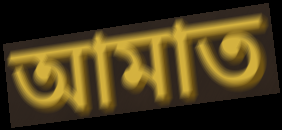
আমাত